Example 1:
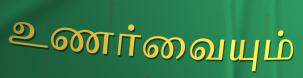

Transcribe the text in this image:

உணர்வையும்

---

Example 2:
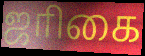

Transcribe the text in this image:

ஜரிகை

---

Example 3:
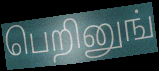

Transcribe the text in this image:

பெறினுங்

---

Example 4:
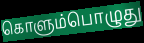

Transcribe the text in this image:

கொளும்பொழுது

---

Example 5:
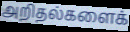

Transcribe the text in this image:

அறிதல்களைக்